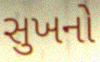
સુખનો